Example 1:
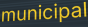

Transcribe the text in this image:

municipal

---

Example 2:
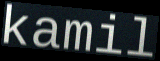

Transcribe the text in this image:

kamil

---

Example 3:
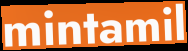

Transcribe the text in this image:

mintamil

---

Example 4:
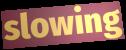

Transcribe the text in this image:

slowing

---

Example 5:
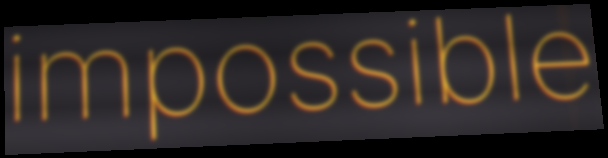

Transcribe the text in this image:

impossible